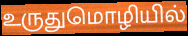
உருதுமொழியில்